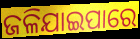
ଜଳିଯାଇପାରେ